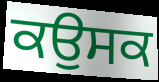
ਕਉਸਕ